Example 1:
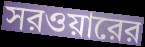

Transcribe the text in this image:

সরওয়ারের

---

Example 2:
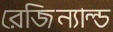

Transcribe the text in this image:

রেজিন্যাল্ড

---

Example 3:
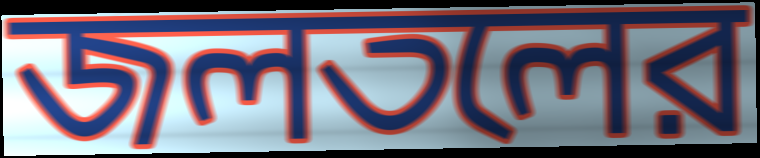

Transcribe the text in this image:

জলতলের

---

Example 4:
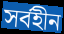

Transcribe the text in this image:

সর্বহীন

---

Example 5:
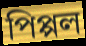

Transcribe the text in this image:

পিপ্পল